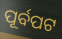
ପୂର୍ବପଟ